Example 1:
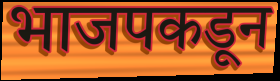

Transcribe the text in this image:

भाजपकडून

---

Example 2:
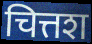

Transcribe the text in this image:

चित्तश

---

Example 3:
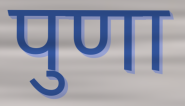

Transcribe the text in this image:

पुणा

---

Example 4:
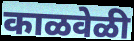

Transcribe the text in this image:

काळवेळी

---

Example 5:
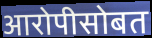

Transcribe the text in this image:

आरोपीसोबत